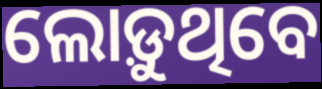
ଲୋଡ଼ୁଥିବେ